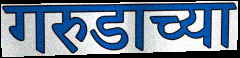
गरुडाच्या